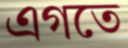
এগতে